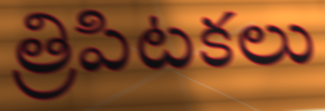
త్రిపిటకలు